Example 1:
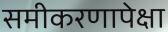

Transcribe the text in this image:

समीकरणापेक्षा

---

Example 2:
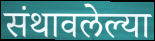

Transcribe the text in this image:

संथावलेल्या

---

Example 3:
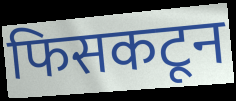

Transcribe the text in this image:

फिसकटून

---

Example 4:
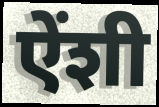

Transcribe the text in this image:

ऐंशी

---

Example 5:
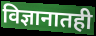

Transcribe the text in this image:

विज्ञानातही